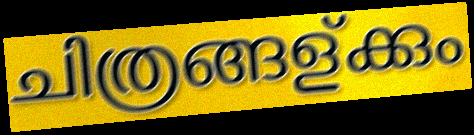
ചിത്രങ്ങള്ക്കും